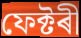
ফেক্টৰী